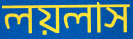
লয়লাস